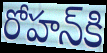
రోహన్‌కి